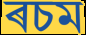
ৰচম